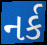
નર્ક